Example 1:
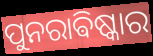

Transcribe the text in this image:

ପୁନରାଵିଷ୍କାର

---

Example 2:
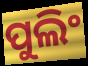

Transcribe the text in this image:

ପୁଲିଂ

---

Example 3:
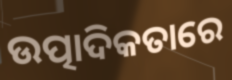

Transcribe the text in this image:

ଉତ୍ପାଦିକତାରେ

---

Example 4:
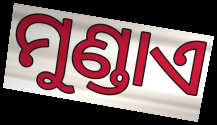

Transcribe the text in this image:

ମୁଣ୍ଡାଏ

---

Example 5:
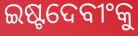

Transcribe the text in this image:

ଇଷ୍ଟଦେବୀଂକୁ